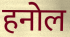
हनोल